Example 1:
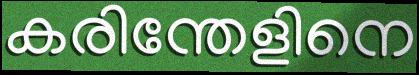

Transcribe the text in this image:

കരിന്തേളിനെ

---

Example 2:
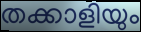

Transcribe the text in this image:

തക്കാളിയും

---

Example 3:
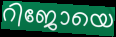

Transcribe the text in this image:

റിജോയെ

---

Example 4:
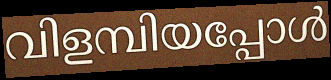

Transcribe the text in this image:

വിളമ്പിയപ്പോൾ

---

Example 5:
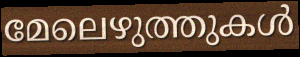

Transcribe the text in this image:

മേലെഴുത്തുകൾ